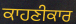
ਕਾਹਣੀਕਾਰ